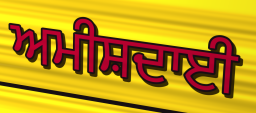
ਅਮੀਸ਼ਦਾਈ